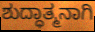
ಶುದ್ಧಾತ್ಮನಾಗಿ